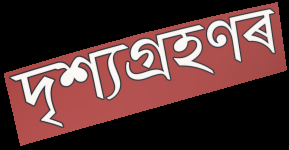
দৃশ্যগ্ৰহণৰ